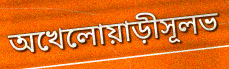
অখেলোয়াড়ীসূলভ